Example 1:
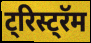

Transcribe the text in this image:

ट्रिस्ट्रॅम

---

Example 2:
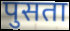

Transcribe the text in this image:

पुसता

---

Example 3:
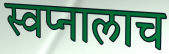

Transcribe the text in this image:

स्वप्नालाच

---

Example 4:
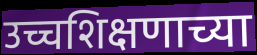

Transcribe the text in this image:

उच्चशिक्षणाच्या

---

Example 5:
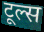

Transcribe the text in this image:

टूल्स